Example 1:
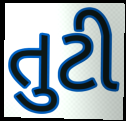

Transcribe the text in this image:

તુટી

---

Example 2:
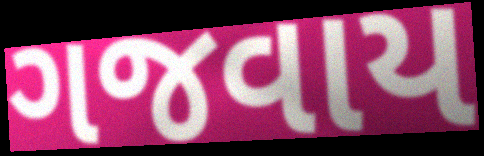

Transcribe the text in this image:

ગજવાય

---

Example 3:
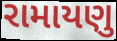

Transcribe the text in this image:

રામાયણુ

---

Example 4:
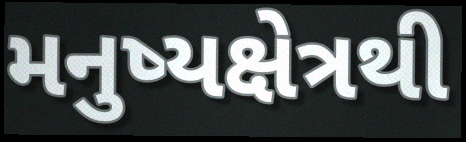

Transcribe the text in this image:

મનુષ્યક્ષેત્રથી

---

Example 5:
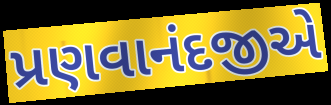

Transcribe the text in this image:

પ્રણવાનંદજીએ